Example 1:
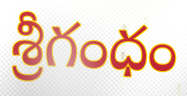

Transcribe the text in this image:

శ్రీగంధం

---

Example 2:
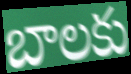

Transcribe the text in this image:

బాలకు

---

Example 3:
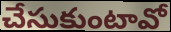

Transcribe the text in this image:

చేసుకుంటావో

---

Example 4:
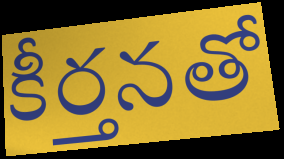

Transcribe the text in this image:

కీర్తనతో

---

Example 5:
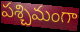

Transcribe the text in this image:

పశ్చిమంగా